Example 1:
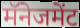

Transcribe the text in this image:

मॅनेजमेंट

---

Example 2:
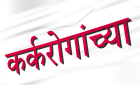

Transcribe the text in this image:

कर्करोगांच्या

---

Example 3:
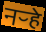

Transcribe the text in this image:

नऱ्हे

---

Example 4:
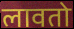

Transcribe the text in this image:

लावतो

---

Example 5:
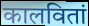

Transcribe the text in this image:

कालवितां